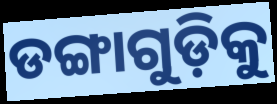
ଡଙ୍ଗାଗୁଡ଼ିକୁ